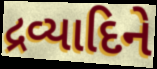
દ્રવ્યાદિને